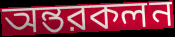
অন্তরকলন